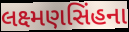
લક્ષ્મણસિંહના